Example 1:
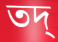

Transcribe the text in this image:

তদ্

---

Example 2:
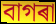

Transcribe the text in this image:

বাগৰা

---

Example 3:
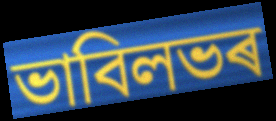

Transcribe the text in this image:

ভাবিলভৰ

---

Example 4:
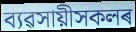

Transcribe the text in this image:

ব্যৱসায়ীসকলৰ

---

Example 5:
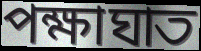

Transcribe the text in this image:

পক্ষাঘাত